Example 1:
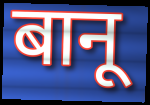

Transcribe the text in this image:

बानू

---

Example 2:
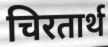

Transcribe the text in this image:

चिरतार्थ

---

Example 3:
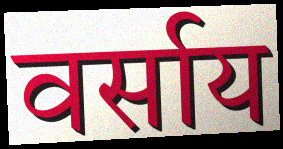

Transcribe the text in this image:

वर्साय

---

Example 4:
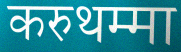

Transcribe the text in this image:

करुथम्मा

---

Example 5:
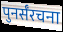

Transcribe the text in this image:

पुनर्संरचना